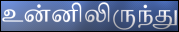
உன்னிலிருந்து